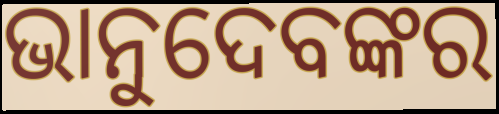
ଭାନୁଦେବଙ୍କର